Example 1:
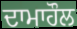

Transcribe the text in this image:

ਦਾਮਾਹੌਲ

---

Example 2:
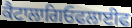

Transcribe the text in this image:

ਕੈਟਾਲਾਗਿਓਫਲਾਈਫ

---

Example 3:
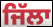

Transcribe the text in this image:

ਜਿੱਲਾ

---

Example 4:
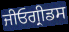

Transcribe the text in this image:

ਜੀਓਗ੍ਰੀਡਸ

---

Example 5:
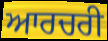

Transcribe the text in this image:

ਆਰਚਰੀ